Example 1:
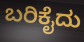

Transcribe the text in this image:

ಬರಿಕೈದು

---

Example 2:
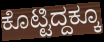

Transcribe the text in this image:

ಕೊಟ್ಟಿದ್ದಕ್ಕೂ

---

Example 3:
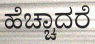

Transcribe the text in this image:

ಹೆಚ್ಚಾದರೆ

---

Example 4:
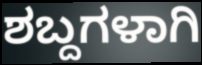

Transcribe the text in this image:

ಶಬ್ದಗಳಾಗಿ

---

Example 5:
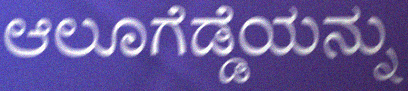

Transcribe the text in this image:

ಆಲೂಗೆಡ್ಡೆಯನ್ನು